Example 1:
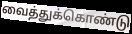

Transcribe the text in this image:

வைத்துக்கொண்டு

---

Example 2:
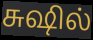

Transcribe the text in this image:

சுஷில்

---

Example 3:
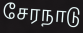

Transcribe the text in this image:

சேரநாடு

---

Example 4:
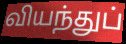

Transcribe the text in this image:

வியந்துப்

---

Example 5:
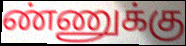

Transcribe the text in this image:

ண்ணுக்கு